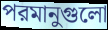
পরমানুগুলো